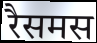
रैसमस